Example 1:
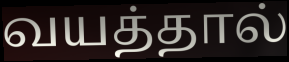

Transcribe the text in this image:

வயத்தால்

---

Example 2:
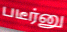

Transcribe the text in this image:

படீர்னு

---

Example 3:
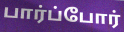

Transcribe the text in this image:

பார்ப்போர்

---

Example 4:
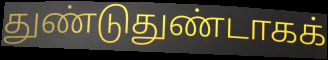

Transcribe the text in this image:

துண்டுதுண்டாகக்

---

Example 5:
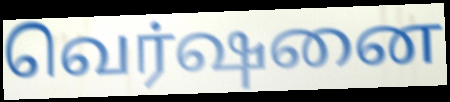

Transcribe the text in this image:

வெர்ஷனை